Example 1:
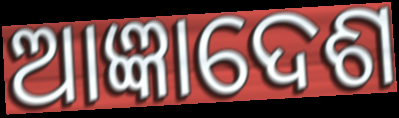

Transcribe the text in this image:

ଆଜ୍ଞାଦେଶ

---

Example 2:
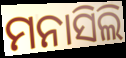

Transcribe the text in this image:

ମନାସିଲି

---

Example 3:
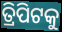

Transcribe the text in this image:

ତ୍ରିପିଟକୁ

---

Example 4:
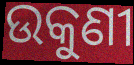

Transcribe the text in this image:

ଉକୁଣୀ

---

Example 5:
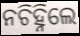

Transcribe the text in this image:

ନଚିହ୍ନିଲେ